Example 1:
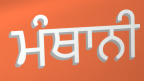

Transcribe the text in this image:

ਮੰਥਾਨੀ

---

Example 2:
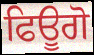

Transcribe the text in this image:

ਫਿਊਗੋ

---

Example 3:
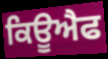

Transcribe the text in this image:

ਕਿਊਐਫ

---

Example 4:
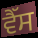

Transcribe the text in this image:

ਵੈੱਸ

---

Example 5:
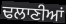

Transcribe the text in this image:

ਢਲਾਣੀਆਂ